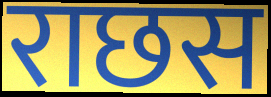
राछस